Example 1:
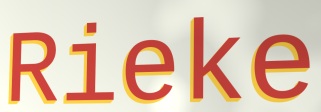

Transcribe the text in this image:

Rieke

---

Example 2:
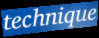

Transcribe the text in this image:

technique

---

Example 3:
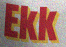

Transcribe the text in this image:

Ekk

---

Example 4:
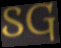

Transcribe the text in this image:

SG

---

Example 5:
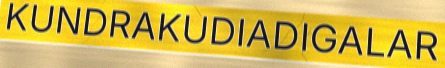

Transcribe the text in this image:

KUNDRAKUDIADIGALAR